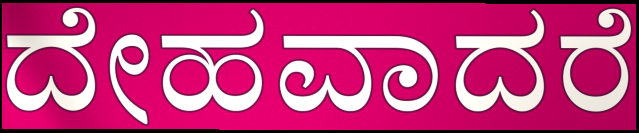
ದೇಹವಾದರೆ